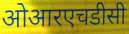
ओआरएचडीसी